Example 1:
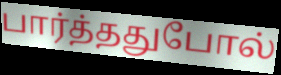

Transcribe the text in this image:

பார்த்ததுபோல்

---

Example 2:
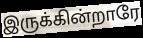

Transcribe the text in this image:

இருக்கின்றாரே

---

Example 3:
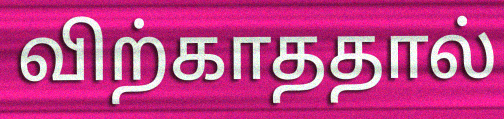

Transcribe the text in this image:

விற்காததால்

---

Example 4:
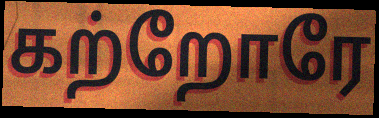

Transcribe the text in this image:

கற்றோரே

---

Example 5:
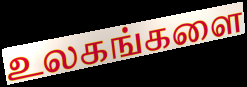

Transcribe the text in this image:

உலகங்களை